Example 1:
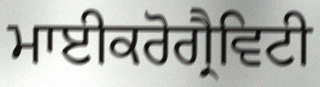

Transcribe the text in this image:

ਮਾਈਕਰੋਗ੍ਰੈਵਿਟੀ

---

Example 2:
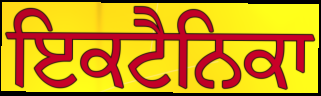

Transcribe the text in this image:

ਇਕਟੈਨਿਕਾ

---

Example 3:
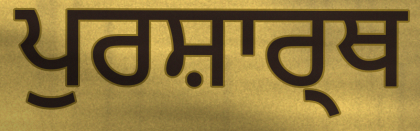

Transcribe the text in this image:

ਪੁਰਸ਼ਾਰ੍ਥ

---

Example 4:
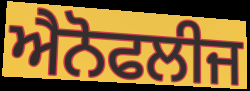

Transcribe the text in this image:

ਐਨੋਫਲੀਜ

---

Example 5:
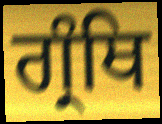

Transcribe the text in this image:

ਗ੍ਰੰਥਿ